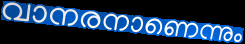
വാനരനാണെന്നും